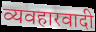
व्यवहारवादी